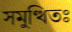
সমুত্থিতঃ